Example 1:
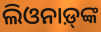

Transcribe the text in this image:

ଲିଓନାଡ଼୍‌ଙ୍କ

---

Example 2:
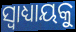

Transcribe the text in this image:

ସ୍ୱାଧ୍ୟାୟକୁ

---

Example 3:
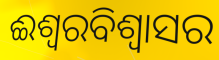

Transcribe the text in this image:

ଈଶ୍ୱରବିଶ୍ୱାସର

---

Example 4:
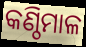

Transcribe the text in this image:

କଣ୍ଠିମାଳ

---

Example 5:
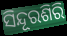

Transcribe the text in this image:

ସିନ୍ଦୂରଶିରି